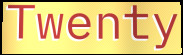
Twenty